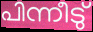
പിന്നീടു്